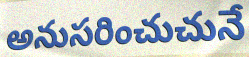
అనుసరించుచునే